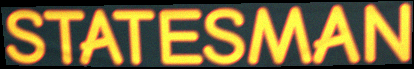
STATESMAN